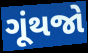
ગૂંથજો